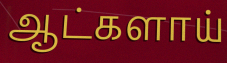
ஆட்களாய்